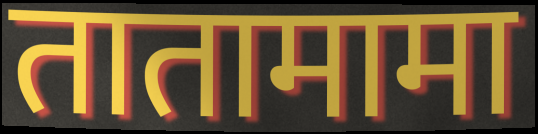
तातामामा